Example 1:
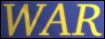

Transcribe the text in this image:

WAR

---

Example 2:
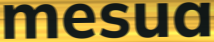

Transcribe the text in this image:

mesua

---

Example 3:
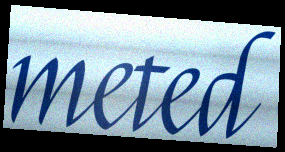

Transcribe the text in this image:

meted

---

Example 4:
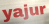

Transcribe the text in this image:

yajur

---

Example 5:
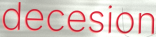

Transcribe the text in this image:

decesion